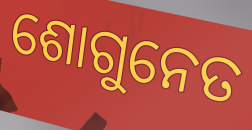
ଶୋଗୁନେତ